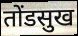
तोंडसुख